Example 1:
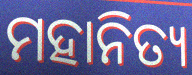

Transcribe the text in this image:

ମହାନିତ୍ୟ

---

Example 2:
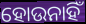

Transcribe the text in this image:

ହୋଉନାହିଁ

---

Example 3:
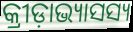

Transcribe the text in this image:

କ୍ରୀଡ଼ାଭ୍ୟାସସ୍ୟ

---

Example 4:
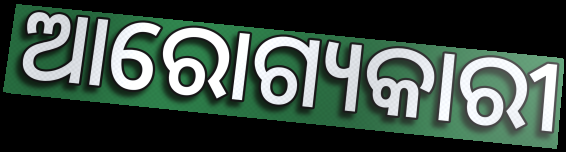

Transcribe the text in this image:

ଆରୋଗ୍ୟକାରୀ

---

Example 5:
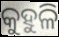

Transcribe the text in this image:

କୁହୁଳି